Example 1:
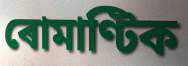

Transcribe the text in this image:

ৰোমাণ্টিক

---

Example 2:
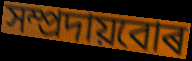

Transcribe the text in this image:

সম্প্ৰদায়বোৰ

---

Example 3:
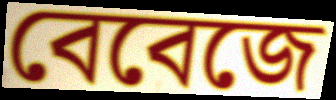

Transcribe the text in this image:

বেবেজে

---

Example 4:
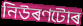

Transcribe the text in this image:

নিউৰণটোৰ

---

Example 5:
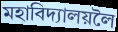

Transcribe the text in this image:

মহাবিদ্যালয়লৈ